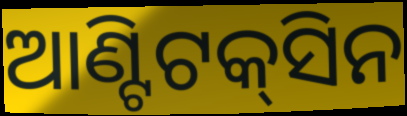
ଆଣ୍ଟିଟକ୍‌ସିନ